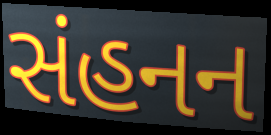
સંહનન